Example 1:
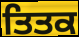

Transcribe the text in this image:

ਤਿਤਕ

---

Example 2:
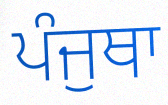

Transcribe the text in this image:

ਪੰਜੁਥਾ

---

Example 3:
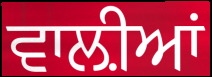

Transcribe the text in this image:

ਵਾਲ਼ੀਆਂ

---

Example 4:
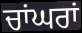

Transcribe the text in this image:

ਚਾਂਘਰਾਂ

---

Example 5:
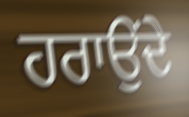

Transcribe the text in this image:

ਹਰਾਉਂਦੇ